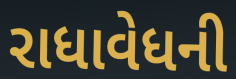
રાધાવેધની